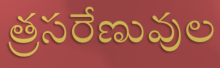
త్రసరేణువుల